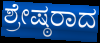
ಶ್ರೇಷ್ಠರಾದ